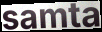
samta